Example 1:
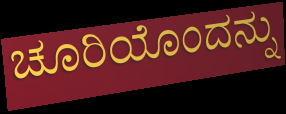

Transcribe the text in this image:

ಚೂರಿಯೊಂದನ್ನು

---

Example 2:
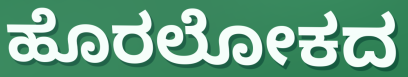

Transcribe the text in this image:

ಹೊರಲೋಕದ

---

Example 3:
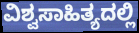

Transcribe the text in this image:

ವಿಶ್ವಸಾಹಿತ್ಯದಲ್ಲಿ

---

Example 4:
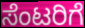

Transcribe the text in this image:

ಸೆಂಟರಿಗೆ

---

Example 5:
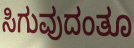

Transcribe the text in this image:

ಸಿಗುವುದಂತೂ